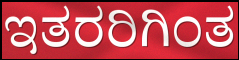
ಇತರರಿಗಿಂತ